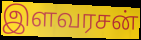
இளவரசன்